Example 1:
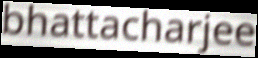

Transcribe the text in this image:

bhattacharjee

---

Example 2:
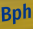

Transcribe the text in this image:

Bph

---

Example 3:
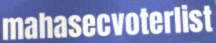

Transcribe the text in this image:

mahasecvoterlist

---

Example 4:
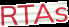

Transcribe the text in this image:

RTAs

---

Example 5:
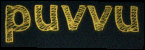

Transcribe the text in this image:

puvvu